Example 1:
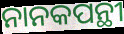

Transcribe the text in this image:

ନାନକପନ୍ଥୀ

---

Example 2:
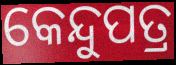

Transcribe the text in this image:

କେନ୍ଦୁପତ୍ର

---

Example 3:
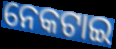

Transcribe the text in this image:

ନେକଟାଇ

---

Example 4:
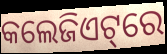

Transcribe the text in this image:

କଲେଜିଏଟ୍‌ରେ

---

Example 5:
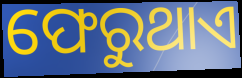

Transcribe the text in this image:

ଫେରୁଥାଏ